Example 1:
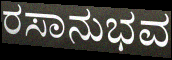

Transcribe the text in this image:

ರಸಾನುಭವ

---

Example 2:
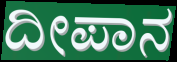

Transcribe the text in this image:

ದೀಪಾನ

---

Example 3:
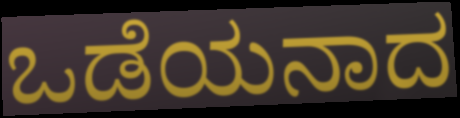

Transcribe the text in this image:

ಒಡೆಯನಾದ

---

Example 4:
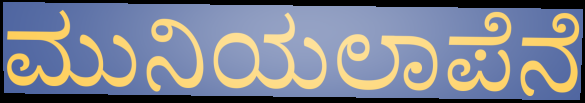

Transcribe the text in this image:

ಮುನಿಯಲಾಪೆನೆ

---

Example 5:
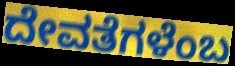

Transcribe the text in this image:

ದೇವತೆಗಳೆಂಬ